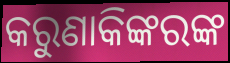
କରୁଣାକିଙ୍କରଙ୍କ